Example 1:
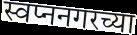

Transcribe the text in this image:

स्वप्ननगरच्या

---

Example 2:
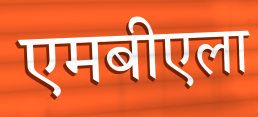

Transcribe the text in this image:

एमबीएला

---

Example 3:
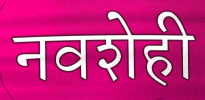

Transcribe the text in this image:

नवशेही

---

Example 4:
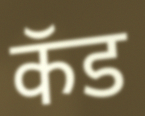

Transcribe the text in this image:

कॅड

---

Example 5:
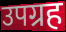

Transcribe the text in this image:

उपग्रह